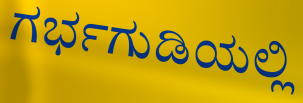
ಗರ್ಭಗುಡಿಯಲ್ಲಿ